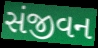
સંજીવન